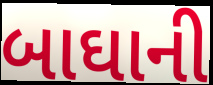
બાઘાની